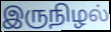
இருநிழல்